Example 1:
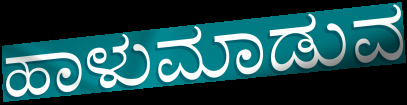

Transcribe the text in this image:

ಹಾಳುಮಾಡುವ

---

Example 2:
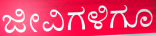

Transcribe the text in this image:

ಜೀವಿಗಳಿಗೂ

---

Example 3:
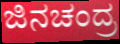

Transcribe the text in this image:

ಜಿನಚಂದ್ರ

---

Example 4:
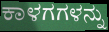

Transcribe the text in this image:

ಕಾಳಗಗಳನ್ನು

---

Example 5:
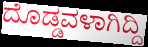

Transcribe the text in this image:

ದೊಡ್ಡವಳಾಗಿದ್ದಿ